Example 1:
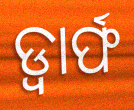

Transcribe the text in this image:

ଡ୍ୱାର୍ଫ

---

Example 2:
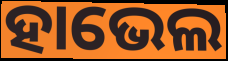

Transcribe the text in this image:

ହାଭେଲ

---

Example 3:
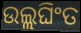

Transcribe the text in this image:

ଉଲ୍ଲଘିଂତ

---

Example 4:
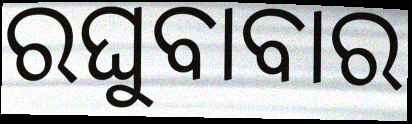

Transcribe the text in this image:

ରଘୁବାବାର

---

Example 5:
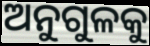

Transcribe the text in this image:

ଅନୁଗୁଳକୁ